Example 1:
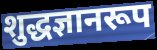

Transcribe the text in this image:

शुद्धज्ञानरूप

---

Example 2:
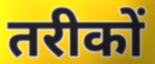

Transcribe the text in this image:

तरीकों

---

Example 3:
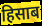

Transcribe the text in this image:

हिसाब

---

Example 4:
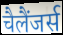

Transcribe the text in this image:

चैलैंजर्स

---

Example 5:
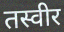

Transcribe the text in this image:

तस्वीर